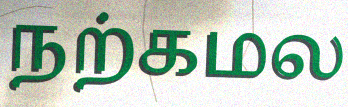
நற்கமல